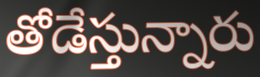
తోడేస్తున్నారు